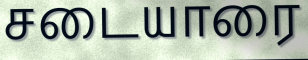
சடையாரை